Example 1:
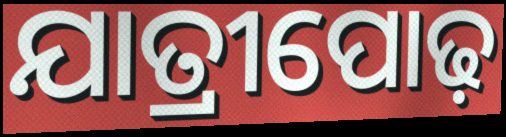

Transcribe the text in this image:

ଯାତ୍ରୀପୋଢ଼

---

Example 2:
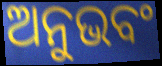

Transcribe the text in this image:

ଅନୁଭବଂ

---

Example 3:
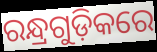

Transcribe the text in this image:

ରନ୍ଧ୍ରଗୁଡ଼ିକରେ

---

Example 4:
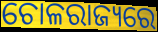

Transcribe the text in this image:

ଚୋଳରାଜ୍ୟରେ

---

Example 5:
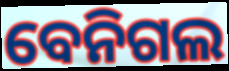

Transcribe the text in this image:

ବେନିଗଲ